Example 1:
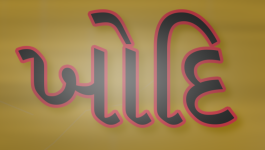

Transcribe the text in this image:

ખોદિ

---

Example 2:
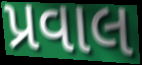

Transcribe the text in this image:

પ્રવાલ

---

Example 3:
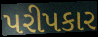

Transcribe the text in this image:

પરીપકાર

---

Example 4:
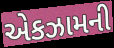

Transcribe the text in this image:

એકઝામની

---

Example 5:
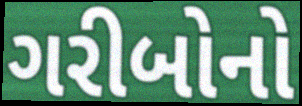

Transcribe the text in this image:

ગરીબોનો